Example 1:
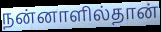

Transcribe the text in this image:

நன்னாளில்தான்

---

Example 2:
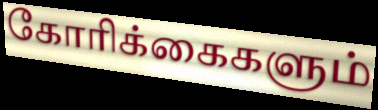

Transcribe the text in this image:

கோரிக்கைகளும்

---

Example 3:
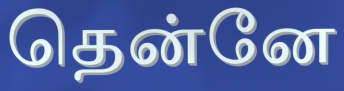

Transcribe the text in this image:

தென்னே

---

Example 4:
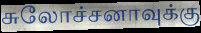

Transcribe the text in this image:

சுலோச்சனாவுக்கு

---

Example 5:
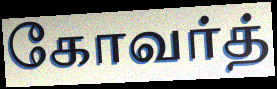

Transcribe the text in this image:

கோவர்த்